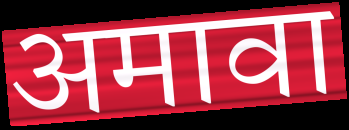
अमावा